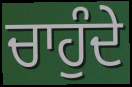
ਚਾਹੁੰਦੇ